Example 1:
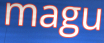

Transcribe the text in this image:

magu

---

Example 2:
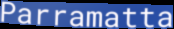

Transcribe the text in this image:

Parramatta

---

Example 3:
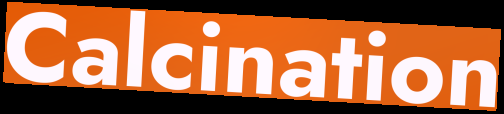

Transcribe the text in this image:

Calcination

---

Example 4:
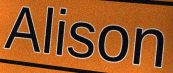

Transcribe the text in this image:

Alison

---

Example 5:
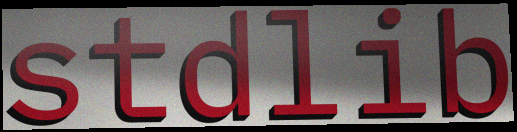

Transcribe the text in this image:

stdlib